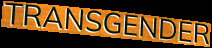
TRANSGENDER